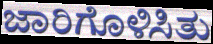
ಜಾರಿಗೊಳಿಸಿತು